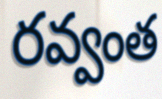
రవ్వంత